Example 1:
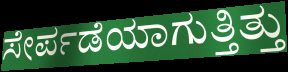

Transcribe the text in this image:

ಸೇರ್ಪಡೆಯಾಗುತ್ತಿತ್ತು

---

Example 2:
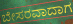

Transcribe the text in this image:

ಬೇಸರವಾದಾಗ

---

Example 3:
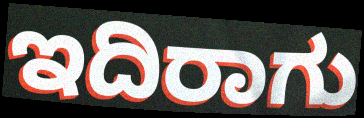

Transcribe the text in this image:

ಇದಿರಾಗು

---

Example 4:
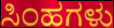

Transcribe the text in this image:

ಸಿಂಹಗಳು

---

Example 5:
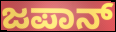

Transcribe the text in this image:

ಜಪಾನ್